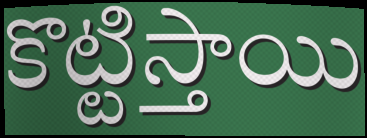
కొట్టిస్తాయి